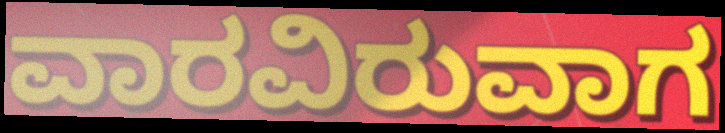
ವಾರವಿರುವಾಗ